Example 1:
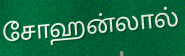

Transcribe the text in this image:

சோஹன்லால்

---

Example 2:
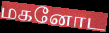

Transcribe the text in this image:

மகனோட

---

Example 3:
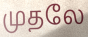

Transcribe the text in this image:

முதலே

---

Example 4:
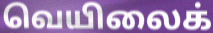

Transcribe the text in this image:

வெயிலைக்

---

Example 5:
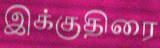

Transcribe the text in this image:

இக்குதிரை